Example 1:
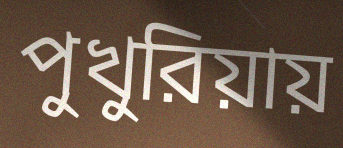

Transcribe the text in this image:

পুখুরিয়ায়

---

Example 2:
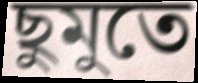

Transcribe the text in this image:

ছুমুতে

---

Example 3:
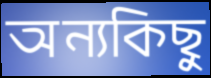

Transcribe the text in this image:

অন্যকিছু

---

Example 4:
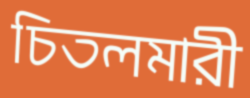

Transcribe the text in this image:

চিতলমারী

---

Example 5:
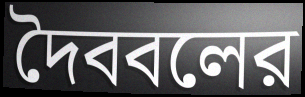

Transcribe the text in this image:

দৈববলের